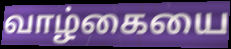
வாழ்கையை